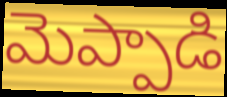
మెప్పాడి